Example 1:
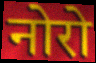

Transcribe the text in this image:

नोरो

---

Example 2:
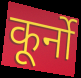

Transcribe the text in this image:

कूर्नो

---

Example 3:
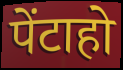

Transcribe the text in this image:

पेंटाहो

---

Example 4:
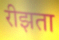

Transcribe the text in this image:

रीझता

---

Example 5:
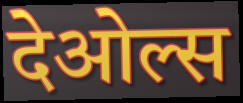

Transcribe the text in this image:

देओल्स